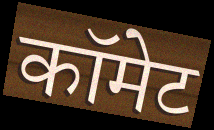
कॉमेट